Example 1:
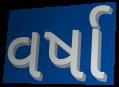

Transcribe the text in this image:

વર્ષા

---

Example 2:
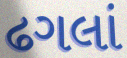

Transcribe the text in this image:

ઢગલાં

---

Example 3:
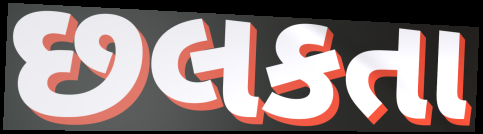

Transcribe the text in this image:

છલકતા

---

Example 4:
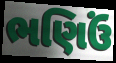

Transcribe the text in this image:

ભણિઉં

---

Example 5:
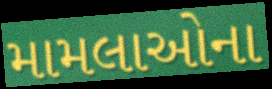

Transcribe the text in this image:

મામલાઓના